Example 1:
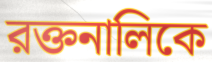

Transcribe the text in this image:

রক্তনালিকে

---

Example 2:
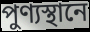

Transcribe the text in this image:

পুণ্যস্থানে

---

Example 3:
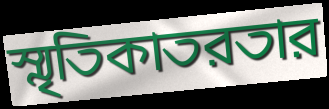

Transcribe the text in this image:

স্মৃতিকাতরতার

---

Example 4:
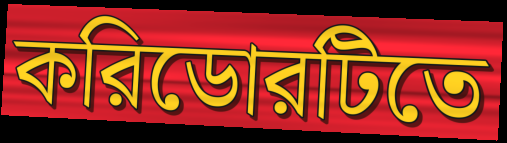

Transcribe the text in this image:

করিডোরটিতে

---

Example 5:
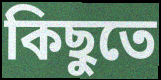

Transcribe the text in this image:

কিছুতে